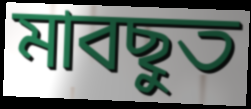
মাবছুত